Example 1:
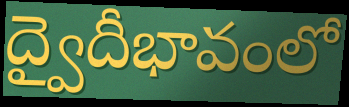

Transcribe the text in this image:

ద్వైదీభావంలో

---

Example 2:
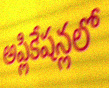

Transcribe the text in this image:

అప్లికేషన్లలో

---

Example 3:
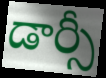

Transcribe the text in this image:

డార్సీ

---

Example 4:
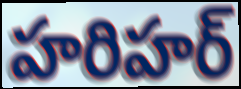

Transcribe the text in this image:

హరిహర్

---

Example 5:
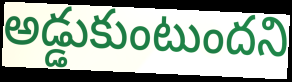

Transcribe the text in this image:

అడ్డుకుంటుందని